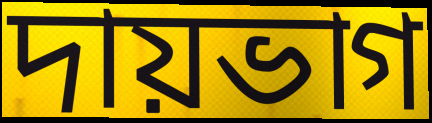
দায়ভাগ